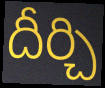
దీర్చి